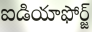
ఐడియాఫోర్జ్